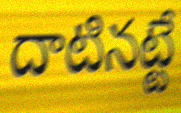
దాటినట్టే